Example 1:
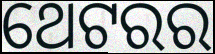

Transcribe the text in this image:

ଥେଟରର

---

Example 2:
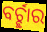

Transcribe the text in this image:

ବର୍ଚ୍ଛାର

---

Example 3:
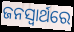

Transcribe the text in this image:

ଜନସ୍ୱାର୍ଥରେ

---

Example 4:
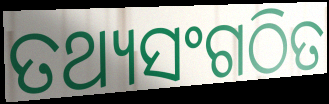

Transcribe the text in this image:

ତଥ୍ୟସଂଗଠିତ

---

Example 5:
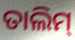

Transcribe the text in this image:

ତାଲିମ୍